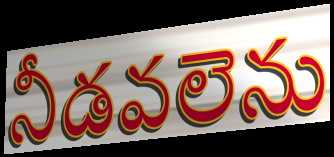
నీడవలెను